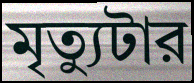
মৃত্যুটার